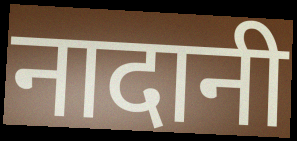
नादानी